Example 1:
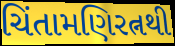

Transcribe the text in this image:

ચિંતામણિરત્નથી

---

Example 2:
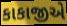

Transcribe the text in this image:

કાકાજીએ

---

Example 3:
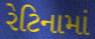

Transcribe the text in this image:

રેટિનામાં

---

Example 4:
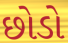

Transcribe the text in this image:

છોડો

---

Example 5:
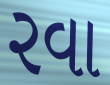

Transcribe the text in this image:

રવા